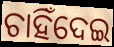
ଚାହିଁଦେଇ